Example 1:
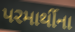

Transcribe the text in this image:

પરમાર્થીના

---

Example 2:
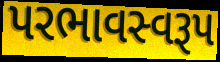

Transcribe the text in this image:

પરભાવસ્વરૂપ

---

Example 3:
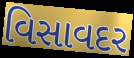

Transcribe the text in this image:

વિસાવદર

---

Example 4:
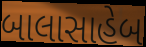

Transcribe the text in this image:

બાલાસાહેબ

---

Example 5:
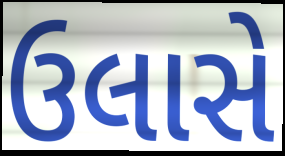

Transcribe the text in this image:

ઉલાસે